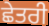
ਛੇਤਰੀ